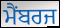
ਮੈਂਬਰਜ